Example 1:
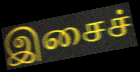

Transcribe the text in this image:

இசைச்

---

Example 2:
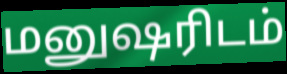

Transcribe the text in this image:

மனுஷரிடம்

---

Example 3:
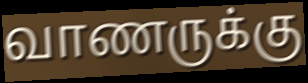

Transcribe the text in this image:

வாணருக்கு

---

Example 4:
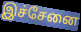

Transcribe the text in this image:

இச்சேனை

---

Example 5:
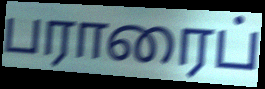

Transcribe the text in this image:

பராரைப்